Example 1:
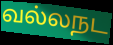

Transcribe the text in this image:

வல்லநட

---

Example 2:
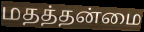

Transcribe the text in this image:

மதத்தன்மை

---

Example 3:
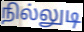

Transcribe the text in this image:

நில்லுடி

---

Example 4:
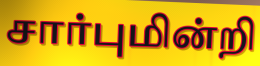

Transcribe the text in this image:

சார்புமின்றி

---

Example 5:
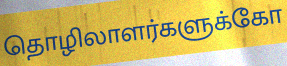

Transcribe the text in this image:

தொழிலாளர்களுக்கோ